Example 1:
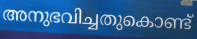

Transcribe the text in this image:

അനുഭവിച്ചതുകൊണ്ട്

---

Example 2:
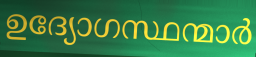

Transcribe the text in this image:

ഉദ്യോഗസ്ഥന്മാർ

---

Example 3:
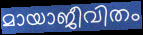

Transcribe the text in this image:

മായാജീവിതം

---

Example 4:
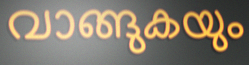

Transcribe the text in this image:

വാങ്ങുകയും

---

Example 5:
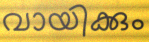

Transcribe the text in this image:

വായിക്കും